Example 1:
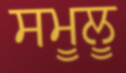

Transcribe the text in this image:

ਸਮੂਲੂ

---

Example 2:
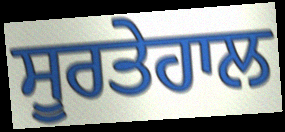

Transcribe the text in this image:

ਸੂਰਤੇਹਾਲ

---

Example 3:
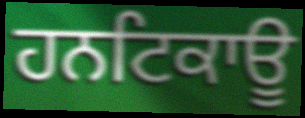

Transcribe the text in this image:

ਹਨਟਿਕਾਊ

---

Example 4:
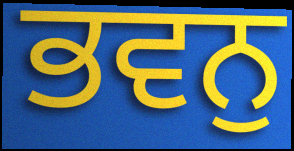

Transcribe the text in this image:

ਭਵਨੁ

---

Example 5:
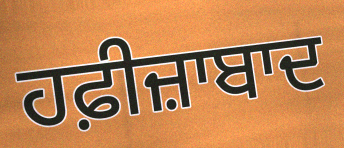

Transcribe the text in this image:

ਹਫ਼ੀਜ਼ਾਬਾਦ